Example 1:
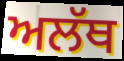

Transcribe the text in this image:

ਅਲੱਥ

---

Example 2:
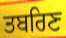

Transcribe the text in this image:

ਤਬਰਿਣ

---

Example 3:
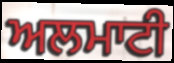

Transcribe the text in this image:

ਅਲਮਾਟੀ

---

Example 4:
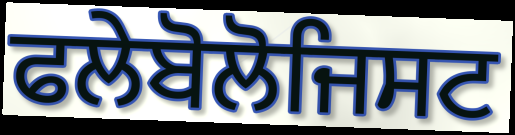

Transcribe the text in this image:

ਫਲੇਬੋਲੋਜਿਸਟ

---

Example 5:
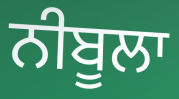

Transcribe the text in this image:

ਨੀਬੂਲਾ